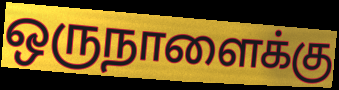
ஒருநாளைக்கு